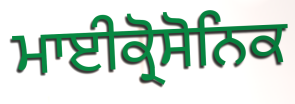
ਮਾਈਕ੍ਰੋਸੋਨਿਕ